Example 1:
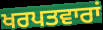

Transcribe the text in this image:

ਖਰਪਤਵਾਰਾਂ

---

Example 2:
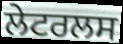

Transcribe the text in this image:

ਲੇਟਰਲਸ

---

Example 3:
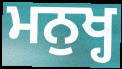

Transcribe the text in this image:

ਮਨੁਖ੍ਹ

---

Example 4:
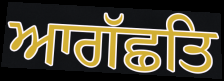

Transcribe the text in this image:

ਆਗੱਛਤਿ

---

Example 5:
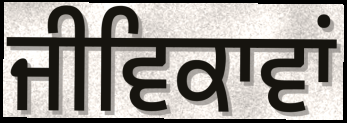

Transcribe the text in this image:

ਜੀਵਿਕਾਵਾਂ